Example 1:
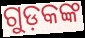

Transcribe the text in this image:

ଗୁଡ଼କଙ୍କ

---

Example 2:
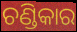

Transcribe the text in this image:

ଚଣ୍ଡିକାର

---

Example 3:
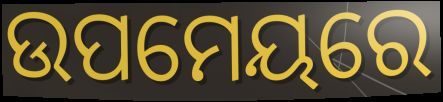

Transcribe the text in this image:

ଉପମେୟରେ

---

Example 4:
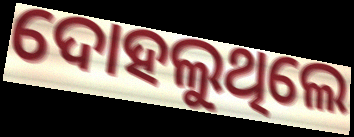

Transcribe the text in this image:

ଦୋହଲୁଥିଲେ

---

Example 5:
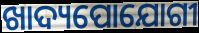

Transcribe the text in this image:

ଖାଦ୍ୟପୋଯୋଗୀ